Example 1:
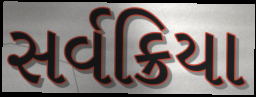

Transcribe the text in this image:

સર્વક્રિયા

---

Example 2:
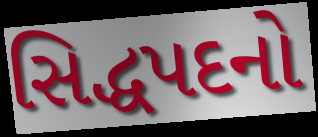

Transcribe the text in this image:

સિદ્ધપદનો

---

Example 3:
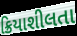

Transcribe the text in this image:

ક્રિયાશીલતા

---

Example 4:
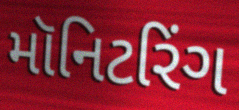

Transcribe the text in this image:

મૉનિટરિંગ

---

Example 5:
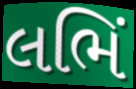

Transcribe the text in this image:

લભિં